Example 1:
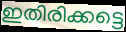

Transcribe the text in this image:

ഇതിരിക്കട്ടെ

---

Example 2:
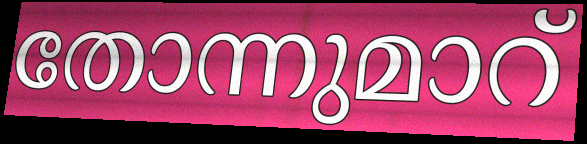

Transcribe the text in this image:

തോന്നുമാറ്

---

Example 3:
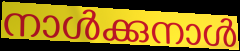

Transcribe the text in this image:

നാൾക്കുനാൾ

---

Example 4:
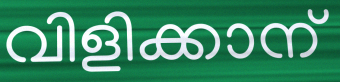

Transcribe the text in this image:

വിളിക്കാന്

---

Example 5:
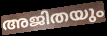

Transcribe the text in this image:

അജിതയും